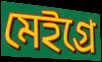
মেইগ্রে